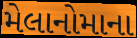
મેલાનોમાના